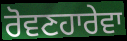
ਰੋਵਣਹਾਰੇਵਾ